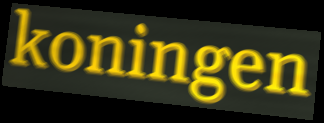
koningen